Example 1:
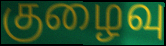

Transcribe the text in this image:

குழைவு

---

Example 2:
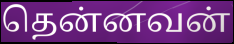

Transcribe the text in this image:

தென்னவன்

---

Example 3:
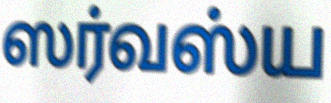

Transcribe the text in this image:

ஸர்வஸ்ய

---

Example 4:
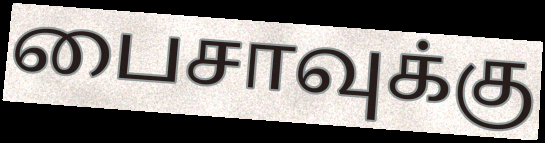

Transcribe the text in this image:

பைசாவுக்கு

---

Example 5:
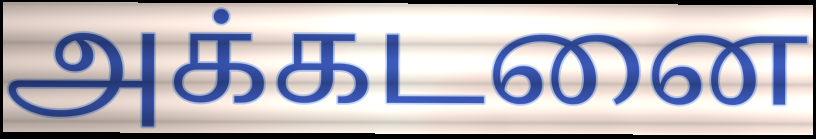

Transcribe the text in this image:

அக்கடனை